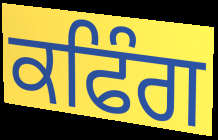
ਕਫਿੰਗ